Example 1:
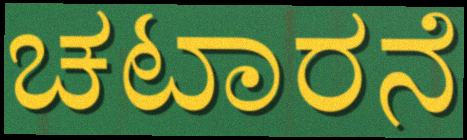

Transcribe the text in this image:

ಚಟಾರನೆ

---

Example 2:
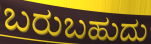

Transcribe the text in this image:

ಬರುಬಹುದು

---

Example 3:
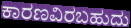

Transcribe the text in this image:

ಕಾರಣವಿರಬಹುದು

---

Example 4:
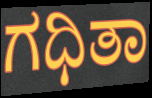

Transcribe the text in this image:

ಗಧಿತಾ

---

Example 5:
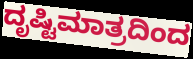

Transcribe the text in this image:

ದೃಷ್ಟಿಮಾತ್ರದಿಂದ